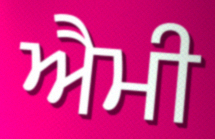
ਐਮੀ